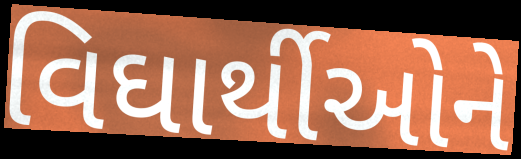
વિઘાર્થીઓને